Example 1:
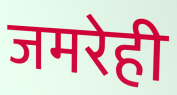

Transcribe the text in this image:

जमरेही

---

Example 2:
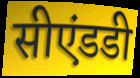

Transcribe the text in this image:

सीएंडडी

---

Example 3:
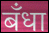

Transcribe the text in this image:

बँधा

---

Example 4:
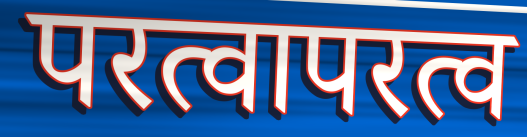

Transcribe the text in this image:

परत्वापरत्व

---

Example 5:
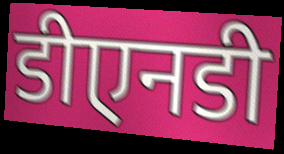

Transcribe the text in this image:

डीएनडी